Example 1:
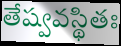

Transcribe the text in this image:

తేష్వవస్థితః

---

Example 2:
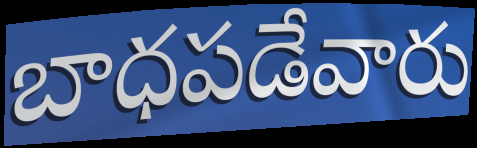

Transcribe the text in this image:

బాధపడేవారు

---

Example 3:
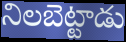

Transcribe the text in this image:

నిలబెట్టాడు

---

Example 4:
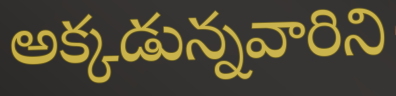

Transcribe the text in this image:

అక్కడున్నవారిని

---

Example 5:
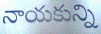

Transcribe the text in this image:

నాయకున్ని